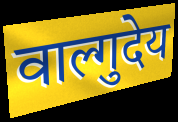
वाल्गुदेय